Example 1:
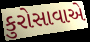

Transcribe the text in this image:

કુરોસાવાએ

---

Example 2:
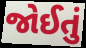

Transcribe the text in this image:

જોઈતું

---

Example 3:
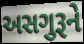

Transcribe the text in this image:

અસગુરૂને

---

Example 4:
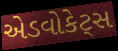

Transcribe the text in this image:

એડવોકેટ્સ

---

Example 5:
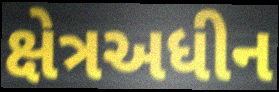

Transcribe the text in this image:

ક્ષેત્રઅધીન